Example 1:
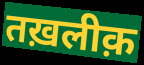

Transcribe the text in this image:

तख़लीक़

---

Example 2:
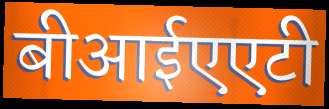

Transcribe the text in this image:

बीआईएएटी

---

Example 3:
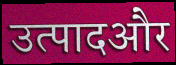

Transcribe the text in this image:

उत्पादऔर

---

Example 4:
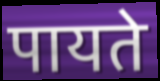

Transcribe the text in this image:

पायते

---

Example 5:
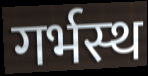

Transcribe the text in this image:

गर्भस्‍थ